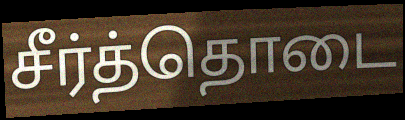
சீர்த்தொடை